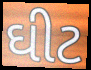
ઘીટ